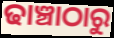
ଢାଞ୍ଚାଠାରୁ